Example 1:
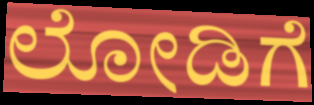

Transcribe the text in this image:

ಲೋಡಿಗೆ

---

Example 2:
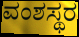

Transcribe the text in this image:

ವಂಶಸ್ಥರ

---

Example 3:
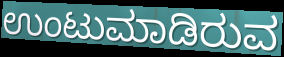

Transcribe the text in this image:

ಉಂಟುಮಾಡಿರುವ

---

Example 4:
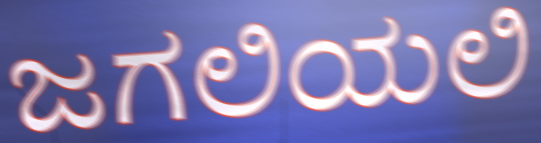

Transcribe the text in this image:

ಜಗಲಿಯಲಿ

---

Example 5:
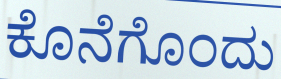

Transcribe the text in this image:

ಕೊನೆಗೊಂದು